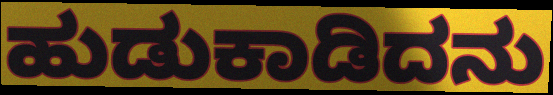
ಹುಡುಕಾಡಿದನು